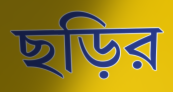
ছড়ির